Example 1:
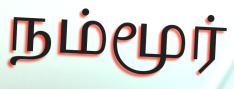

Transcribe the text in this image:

நம்மூர்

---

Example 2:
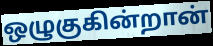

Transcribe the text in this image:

ஒழுகுகின்றான்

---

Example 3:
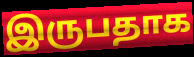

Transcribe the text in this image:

இருபதாக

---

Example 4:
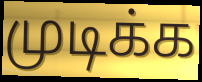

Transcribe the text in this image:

முடிக்க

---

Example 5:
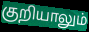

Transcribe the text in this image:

குறியாலும்